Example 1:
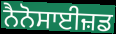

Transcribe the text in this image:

ਨੈਨੋਸਾਈਜ਼ਡ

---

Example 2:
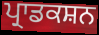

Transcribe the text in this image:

ਪ੍ਰਾਡਕਸ਼ਨ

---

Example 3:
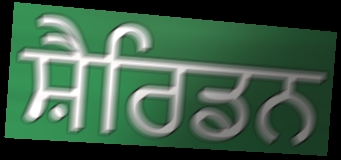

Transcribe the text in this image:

ਸ਼ੈਰਿਡਨ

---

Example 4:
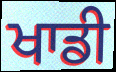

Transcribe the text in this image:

ਖਾਡੀ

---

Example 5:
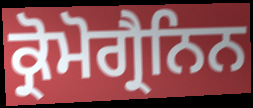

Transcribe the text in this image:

ਕ੍ਰੋਮੋਗ੍ਰੈਨਿਨ